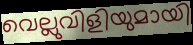
വെല്ലുവിളിയുമായി